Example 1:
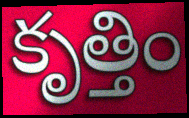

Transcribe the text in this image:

కృత్తిం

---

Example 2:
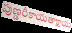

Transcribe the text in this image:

పుణ్డరీకాయతాక్షాయ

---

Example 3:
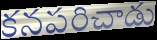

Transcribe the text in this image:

కనపరిచాడు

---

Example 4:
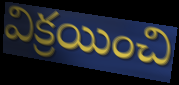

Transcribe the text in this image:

విక్రయించి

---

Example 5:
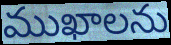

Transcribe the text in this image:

ముఖాలను